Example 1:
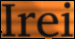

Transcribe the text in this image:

Irei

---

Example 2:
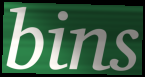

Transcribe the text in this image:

bins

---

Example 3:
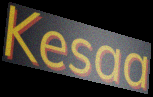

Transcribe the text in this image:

Kesaa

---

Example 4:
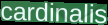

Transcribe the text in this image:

cardinalis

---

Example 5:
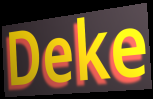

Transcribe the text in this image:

Deke